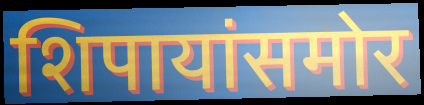
शिपायांसमोर